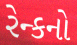
રેન્કનો